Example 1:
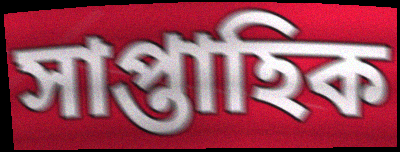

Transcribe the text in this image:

সাপ্তাহিক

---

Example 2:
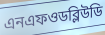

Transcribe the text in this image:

এনএফওডব্লিউডি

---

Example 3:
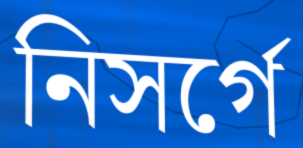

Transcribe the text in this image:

নিসর্গে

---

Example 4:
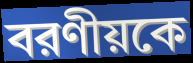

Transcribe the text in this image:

বরণীয়কে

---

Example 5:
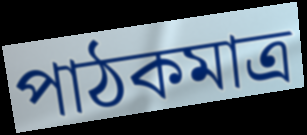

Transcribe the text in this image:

পাঠকমাত্র